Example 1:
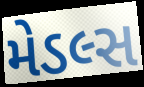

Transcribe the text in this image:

મેડલ્સ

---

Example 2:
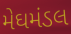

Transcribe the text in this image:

મેઘમંડલ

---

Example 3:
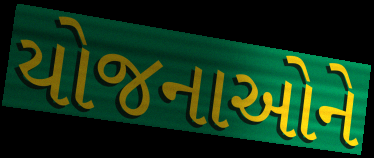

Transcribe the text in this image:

યોજનાઓને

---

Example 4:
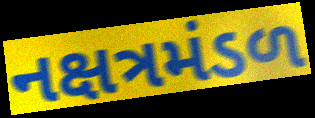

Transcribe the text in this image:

નક્ષત્રમંડળ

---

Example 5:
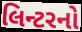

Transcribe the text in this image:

લિન્ટરનો